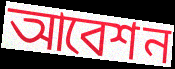
আবেশন